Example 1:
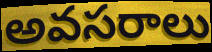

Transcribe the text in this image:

అవసరాలు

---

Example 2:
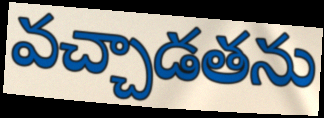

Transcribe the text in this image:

వచ్చాడతను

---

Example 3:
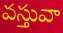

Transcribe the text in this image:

వస్తువా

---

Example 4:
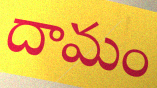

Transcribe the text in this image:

దామం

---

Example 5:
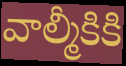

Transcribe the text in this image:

వాల్మీకికి